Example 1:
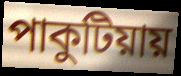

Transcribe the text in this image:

পাকুটিয়ায়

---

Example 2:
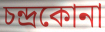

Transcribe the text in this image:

চন্দ্রকোনা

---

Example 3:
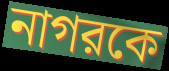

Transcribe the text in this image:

নাগরকে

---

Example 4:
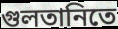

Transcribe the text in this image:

গুলতানিতে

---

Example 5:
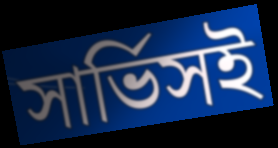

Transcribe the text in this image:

সার্ভিসই